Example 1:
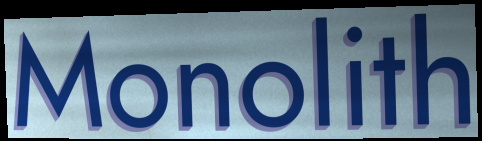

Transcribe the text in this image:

Monolith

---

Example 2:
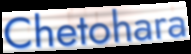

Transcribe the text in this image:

Chetohara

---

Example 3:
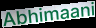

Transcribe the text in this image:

Abhimaani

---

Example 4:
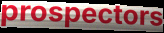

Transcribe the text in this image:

prospectors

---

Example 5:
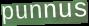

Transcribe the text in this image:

punnus